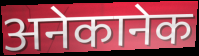
अनेकानेक